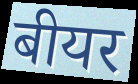
बीयर